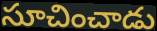
సూచించాడు